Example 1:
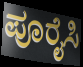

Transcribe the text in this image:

ಪೂರೈಸಿ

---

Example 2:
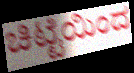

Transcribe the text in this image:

ಚಿಟ್ಟೆಯಿಂದ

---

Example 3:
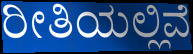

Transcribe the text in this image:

ರೀತಿಯಲ್ಲಿವೆ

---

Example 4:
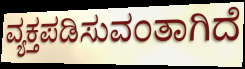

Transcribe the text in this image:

ವ್ಯಕ್ತಪಡಿಸುವಂತಾಗಿದೆ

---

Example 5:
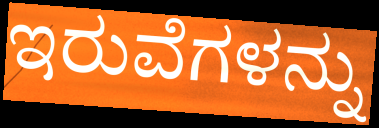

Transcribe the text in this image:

ಇರುವೆಗಳನ್ನು